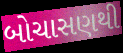
બોચાસણથી